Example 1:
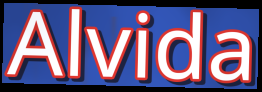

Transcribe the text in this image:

Alvida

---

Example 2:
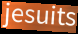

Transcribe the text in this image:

jesuits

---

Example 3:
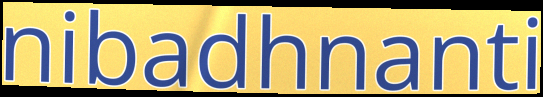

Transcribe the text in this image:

nibadhnanti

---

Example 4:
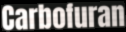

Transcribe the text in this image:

Carbofuran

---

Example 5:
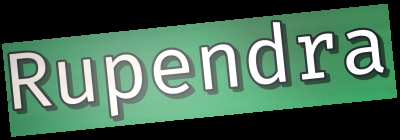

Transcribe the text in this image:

Rupendra